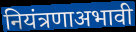
नियंत्रणाअभावी